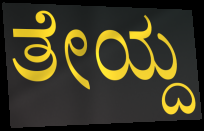
ತೇಯ್ದ